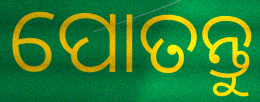
ପୋତନ୍ତୁ